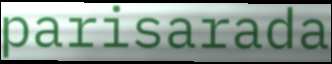
parisarada